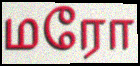
மரோ